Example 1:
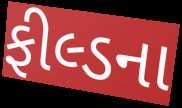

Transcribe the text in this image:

ફીલ્ડના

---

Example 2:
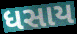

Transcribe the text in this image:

ધસાય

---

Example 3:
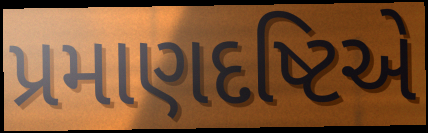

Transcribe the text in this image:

પ્રમાણદષ્ટિએ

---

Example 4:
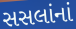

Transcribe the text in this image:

સસલાંનાં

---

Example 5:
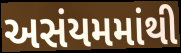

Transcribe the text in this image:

અસંયમમાંથી